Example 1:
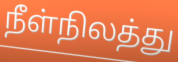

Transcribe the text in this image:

நீள்நிலத்து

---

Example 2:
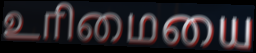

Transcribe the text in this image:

உரிமையை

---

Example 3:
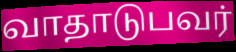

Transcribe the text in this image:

வாதாடுபவர்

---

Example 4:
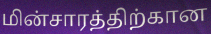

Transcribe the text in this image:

மின்சாரத்திற்கான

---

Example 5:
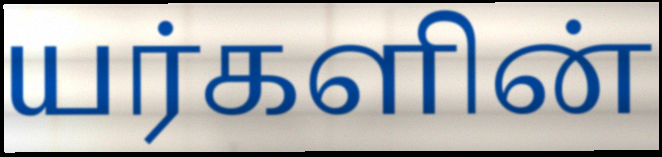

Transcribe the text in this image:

யர்களின்